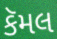
કૅમલ